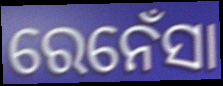
ରେନେଁସା